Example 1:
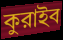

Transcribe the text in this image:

কুরাইব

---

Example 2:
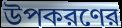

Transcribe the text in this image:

উপকরণের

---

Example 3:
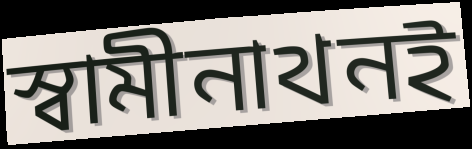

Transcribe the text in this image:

স্বামীনাথনই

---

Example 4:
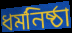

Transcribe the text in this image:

ধর্মনিষ্ঠা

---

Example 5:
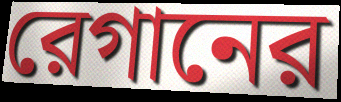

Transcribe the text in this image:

রেগানের